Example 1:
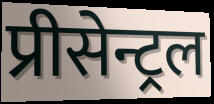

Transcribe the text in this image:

प्रीसेन्ट्रल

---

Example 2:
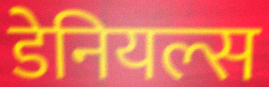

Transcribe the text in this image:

डेनियल्स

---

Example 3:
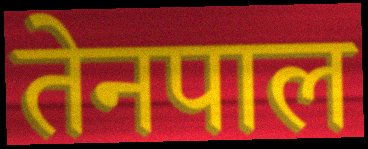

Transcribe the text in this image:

तेनपाल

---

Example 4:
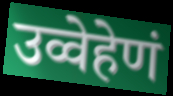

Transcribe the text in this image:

उव्वेहेणं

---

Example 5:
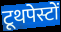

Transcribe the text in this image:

टूथपेस्टों